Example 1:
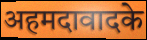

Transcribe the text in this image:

अहमदावादके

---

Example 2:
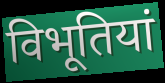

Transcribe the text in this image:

विभूतियां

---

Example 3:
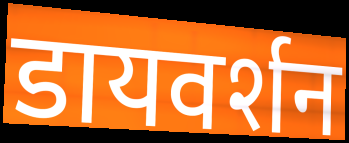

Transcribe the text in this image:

डायवर्शन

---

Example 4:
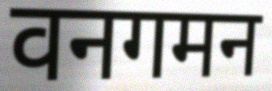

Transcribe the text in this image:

वनगमन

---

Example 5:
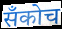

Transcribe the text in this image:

सँकोच